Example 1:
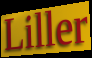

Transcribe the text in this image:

Liller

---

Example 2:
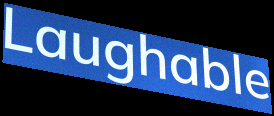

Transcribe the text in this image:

Laughable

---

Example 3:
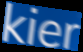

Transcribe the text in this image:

kier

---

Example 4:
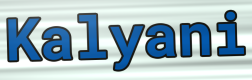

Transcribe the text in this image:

Kalyani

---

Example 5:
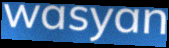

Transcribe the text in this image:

wasyan